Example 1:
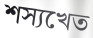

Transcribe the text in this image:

শস্যখেত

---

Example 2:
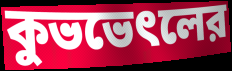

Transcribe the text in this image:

কুভভেৎলের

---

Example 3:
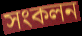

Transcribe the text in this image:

সংকলন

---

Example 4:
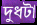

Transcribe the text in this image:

দুধটা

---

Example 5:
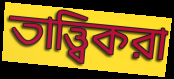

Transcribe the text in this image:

তাত্ত্বিকরা